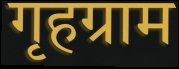
गृहग्राम